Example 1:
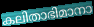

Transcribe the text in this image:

കലിതാഭിമാനാ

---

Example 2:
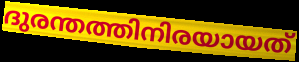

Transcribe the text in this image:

ദുരന്തത്തിനിരയായത്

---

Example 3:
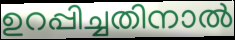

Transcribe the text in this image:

ഉറപ്പിച്ചതിനാൽ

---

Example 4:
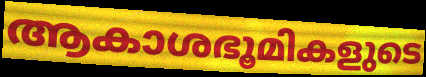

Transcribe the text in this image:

ആകാശഭൂമികളുടെ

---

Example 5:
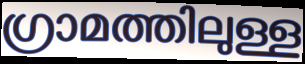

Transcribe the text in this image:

ഗ്രാമത്തിലുള്ള